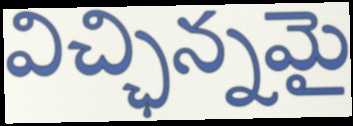
విచ్ఛిన్నమై